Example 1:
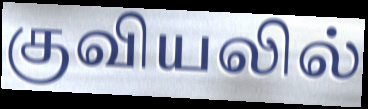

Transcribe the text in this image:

குவியலில்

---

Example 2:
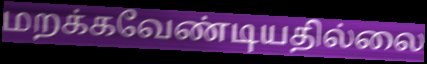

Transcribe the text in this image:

மறக்கவேண்டியதில்லை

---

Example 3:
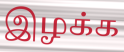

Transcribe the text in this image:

இழக்க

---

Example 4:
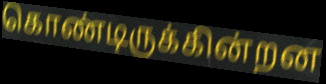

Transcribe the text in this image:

கொண்டிருக்கின்றன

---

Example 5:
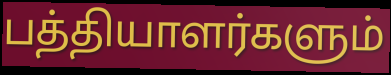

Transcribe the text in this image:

பத்தியாளர்களும்